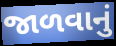
જાળવાનું